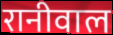
रानीवाल